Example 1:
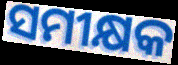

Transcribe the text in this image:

ସମୀକ୍ଷକ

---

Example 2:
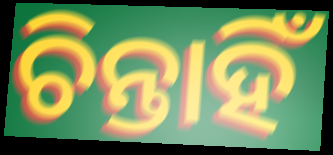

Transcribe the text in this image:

ଚିନ୍ତାହିଁ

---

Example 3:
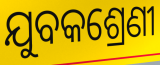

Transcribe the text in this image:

ଯୁବକଶ୍ରେଣୀ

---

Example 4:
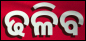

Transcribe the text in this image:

ଢଳିବ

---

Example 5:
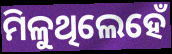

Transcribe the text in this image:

ମିଳୁଥିଲେହେଁ